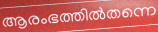
ആരംഭത്തിൽതന്നെ